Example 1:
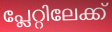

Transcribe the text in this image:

പ്ലേറ്റിലേക്ക്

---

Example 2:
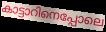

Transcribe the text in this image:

കാട്ടാറിനെപ്പോലെ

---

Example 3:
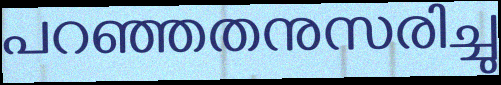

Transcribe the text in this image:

പറഞ്ഞതനുസരിച്ചു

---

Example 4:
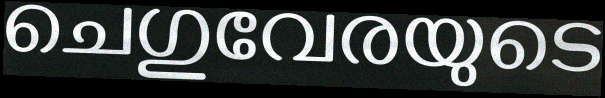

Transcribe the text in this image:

ചെഗുവേരയുടെ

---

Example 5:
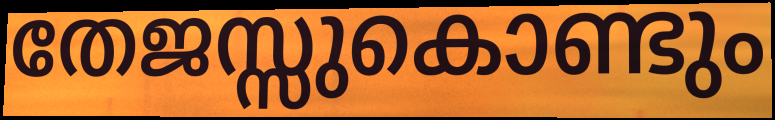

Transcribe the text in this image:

തേജസ്സുകൊണ്ടും